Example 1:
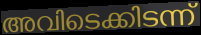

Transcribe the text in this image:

അവിടെക്കിടന്ന്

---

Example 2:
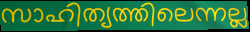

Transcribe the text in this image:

സാഹിത്യത്തിലെന്നല്ല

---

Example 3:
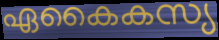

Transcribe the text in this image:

ഏകൈകസ്യ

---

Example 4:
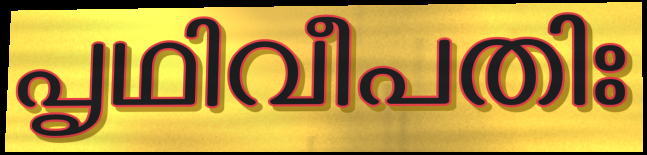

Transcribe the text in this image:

പൃഥിവീപതിഃ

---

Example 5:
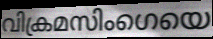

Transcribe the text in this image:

വിക്രമസിംഗെയെ